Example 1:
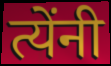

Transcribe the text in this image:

त्येंनी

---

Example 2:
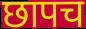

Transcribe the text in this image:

छापच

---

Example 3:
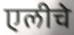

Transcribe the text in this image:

एलीचे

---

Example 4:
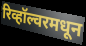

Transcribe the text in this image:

रिव्हॉल्वरमधून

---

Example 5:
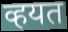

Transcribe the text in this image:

व्हयत